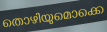
തൊഴിയുമൊക്കെ